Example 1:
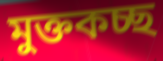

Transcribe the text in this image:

মুক্তকচ্ছ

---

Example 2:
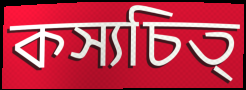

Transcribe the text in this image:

কস্যচিত্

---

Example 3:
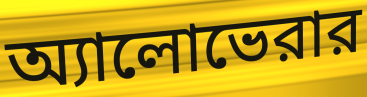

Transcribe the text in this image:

অ্যালোভেরার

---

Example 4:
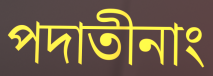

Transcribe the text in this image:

পদাতীনাং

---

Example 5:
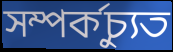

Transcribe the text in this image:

সম্পর্কচ্যুত